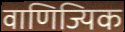
वाणिज्यिक